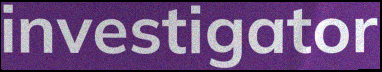
investigator